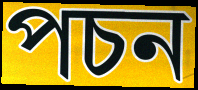
পচন